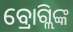
ବ୍ରୋଗ୍ଲିଙ୍କ